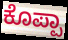
ಕೊಪ್ಪಾ